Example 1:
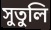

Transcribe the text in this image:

সুতুলি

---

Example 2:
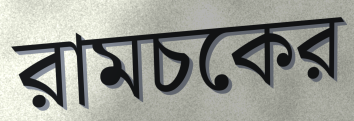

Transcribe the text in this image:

রামচকের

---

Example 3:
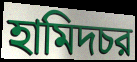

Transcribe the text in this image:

হামিদচর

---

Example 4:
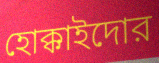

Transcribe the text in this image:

হোক্কাইদোর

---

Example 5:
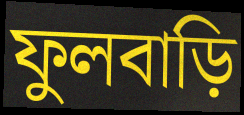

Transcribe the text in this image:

ফুলবাড়ি